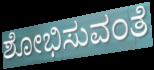
ಶೋಭಿಸುವಂತೆ